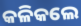
କଳିକଲେ